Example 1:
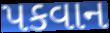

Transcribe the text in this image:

પકવાન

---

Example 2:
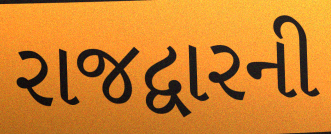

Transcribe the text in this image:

રાજદ્વારની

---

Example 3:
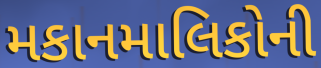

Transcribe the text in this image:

મકાનમાલિકોની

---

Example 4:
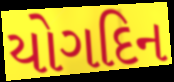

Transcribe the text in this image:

યોગદિન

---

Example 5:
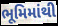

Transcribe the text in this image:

ભૂમિમાંથી